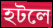
হটলে